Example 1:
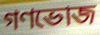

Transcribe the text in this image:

গণভোজ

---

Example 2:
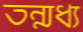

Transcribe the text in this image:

তন্মধ্য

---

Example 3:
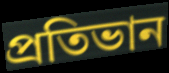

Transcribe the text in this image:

প্রতিভান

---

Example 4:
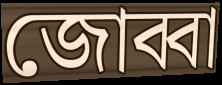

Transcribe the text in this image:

জোব্বা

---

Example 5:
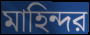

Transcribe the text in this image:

মাহিন্দর